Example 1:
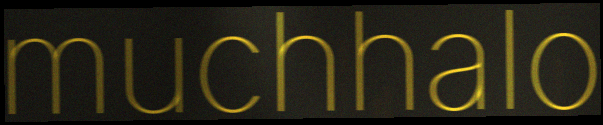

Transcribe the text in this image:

muchhalo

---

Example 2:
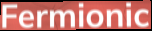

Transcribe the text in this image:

Fermionic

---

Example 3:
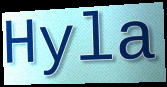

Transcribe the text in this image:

Hyla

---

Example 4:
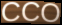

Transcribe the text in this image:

CCO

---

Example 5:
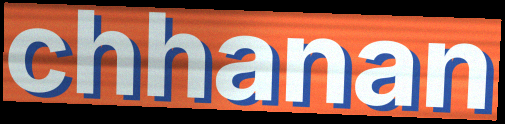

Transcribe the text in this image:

chhanan